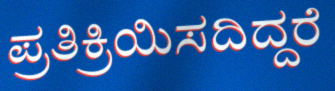
ಪ್ರತಿಕ್ರಿಯಿಸದಿದ್ದರೆ